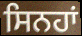
ਸਿਨਹਾਂ